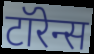
टॉरेन्स